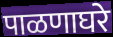
पाळणाघरे